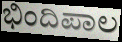
ಭಿಂದಿಪಾಲ